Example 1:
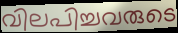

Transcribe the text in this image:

വിലപിച്ചവരുടെ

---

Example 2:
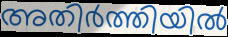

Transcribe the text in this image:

അതിർത്തിയിൽ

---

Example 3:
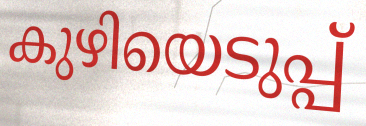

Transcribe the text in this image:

കുഴിയെടുപ്പ്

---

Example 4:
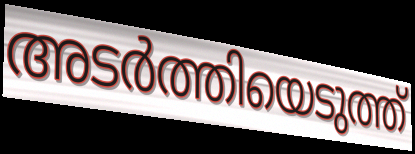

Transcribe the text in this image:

അടർത്തിയെടുത്ത്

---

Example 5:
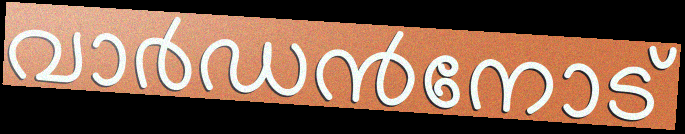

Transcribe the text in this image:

വാർഡൻനോട്